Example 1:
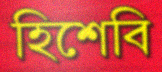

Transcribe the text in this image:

হিশেবি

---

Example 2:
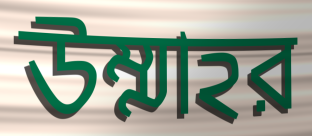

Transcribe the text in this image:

উম্মাহর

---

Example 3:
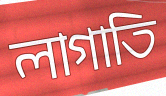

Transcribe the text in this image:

লাগাতি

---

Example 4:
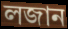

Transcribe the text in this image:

লজান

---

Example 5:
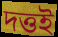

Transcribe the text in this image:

দত্তই